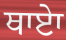
ਥਾਏਾ